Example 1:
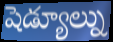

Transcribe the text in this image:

షెడ్యూల్ను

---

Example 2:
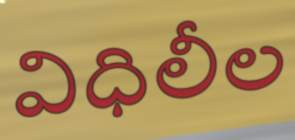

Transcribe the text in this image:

విధిలీల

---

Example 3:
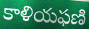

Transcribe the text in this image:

కాళియఫణి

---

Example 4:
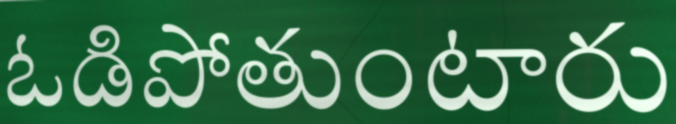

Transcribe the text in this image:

ఓడిపోతుంటారు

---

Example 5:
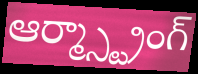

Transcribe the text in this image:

ఆర్మ్స్ట్రాంగ్